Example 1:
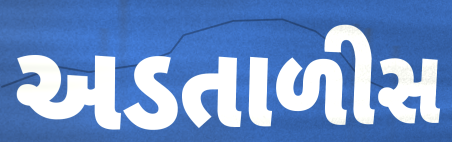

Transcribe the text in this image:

અડતાળીસ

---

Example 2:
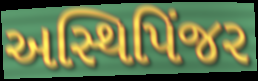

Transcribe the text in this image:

અસ્થિપિંજર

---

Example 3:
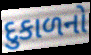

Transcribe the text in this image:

દુકાળનો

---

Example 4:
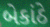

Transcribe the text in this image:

બેકાંઠે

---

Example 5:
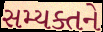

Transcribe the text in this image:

સમ્યક્તને